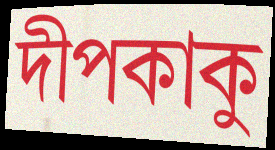
দীপকাকু